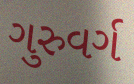
ગુરુવર્ગ